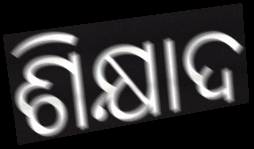
ଶିକ୍ଷାଦ